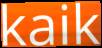
kaik